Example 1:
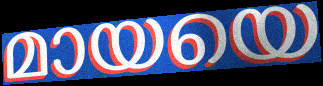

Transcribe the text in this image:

മായയെ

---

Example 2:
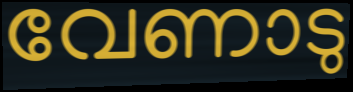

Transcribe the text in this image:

വേണാടു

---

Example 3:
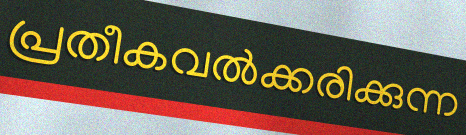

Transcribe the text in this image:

പ്രതീകവൽക്കരിക്കുന്ന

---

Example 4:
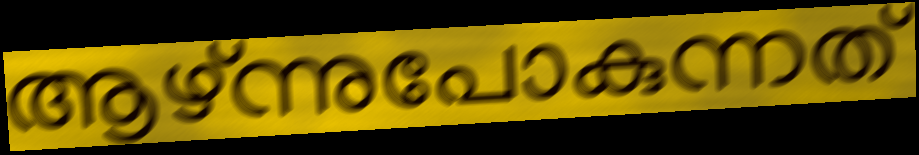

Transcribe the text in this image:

ആഴ്ന്നുപോകുന്നത്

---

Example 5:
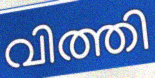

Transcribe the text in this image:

വിത്തി